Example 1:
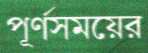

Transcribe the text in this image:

পূর্ণসময়ের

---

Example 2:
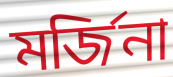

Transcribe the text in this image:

মর্জিনা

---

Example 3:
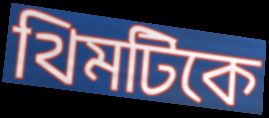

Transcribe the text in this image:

থিমটিকে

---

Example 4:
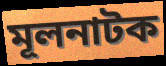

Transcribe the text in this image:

মূলনাটক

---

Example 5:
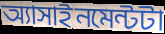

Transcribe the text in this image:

অ্যাসাইনমেন্টটা